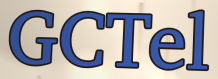
GCTel